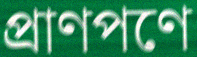
প্রাণপণে